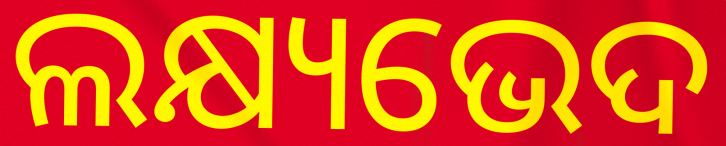
ଲକ୍ଷ୍ୟଭେଦ